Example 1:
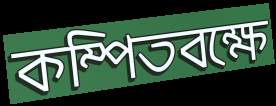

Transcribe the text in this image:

কম্পিতবক্ষে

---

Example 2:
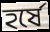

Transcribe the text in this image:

হর্ষে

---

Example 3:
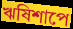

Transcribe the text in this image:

ঋষিশাপে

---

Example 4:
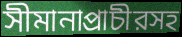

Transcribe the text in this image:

সীমানাপ্রাচীরসহ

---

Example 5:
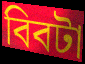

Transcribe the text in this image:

বিবটা